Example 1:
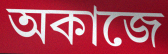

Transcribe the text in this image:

অকাজে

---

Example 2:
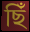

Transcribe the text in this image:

ছিঁ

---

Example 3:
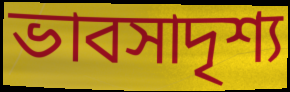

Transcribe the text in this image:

ভাবসাদৃশ্য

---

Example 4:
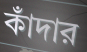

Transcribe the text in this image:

কাঁদার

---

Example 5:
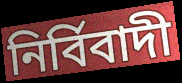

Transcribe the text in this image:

নির্বিবাদী